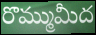
రొమ్ముమీద